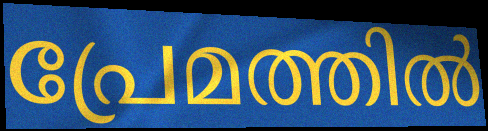
പ്രേമത്തിൽ